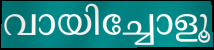
വായിച്ചോളൂ